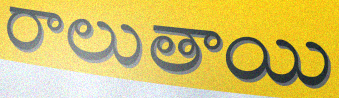
రాలుతాయి